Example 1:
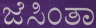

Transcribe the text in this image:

ಜೆಸಿಂತಾ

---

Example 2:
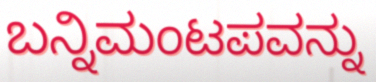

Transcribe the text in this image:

ಬನ್ನಿಮಂಟಪವನ್ನು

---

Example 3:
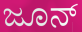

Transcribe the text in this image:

ಜೂನ್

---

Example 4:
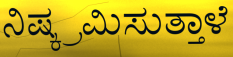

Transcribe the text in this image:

ನಿಷ್ಕ್ರಮಿಸುತ್ತಾಳೆ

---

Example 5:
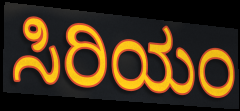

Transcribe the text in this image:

ಸಿರಿಯಂ